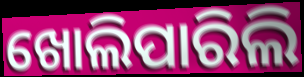
ଖୋଲିପାରିଲି